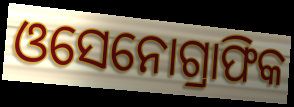
ଓସେନୋଗ୍ରାଫିକ